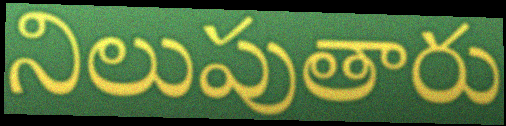
నిలుపుతారు